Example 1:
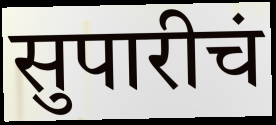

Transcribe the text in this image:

सुपारीचं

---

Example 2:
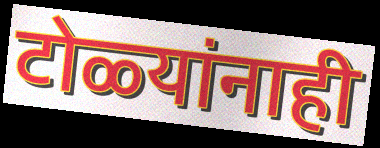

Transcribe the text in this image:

टोळ्यांनाही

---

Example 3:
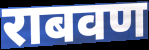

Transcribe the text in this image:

राबवण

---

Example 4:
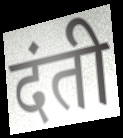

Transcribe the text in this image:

दंती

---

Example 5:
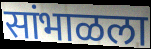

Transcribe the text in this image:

सांभाळला